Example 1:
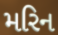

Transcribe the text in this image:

મરિન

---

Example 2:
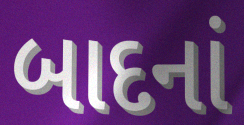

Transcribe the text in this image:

બાદનાં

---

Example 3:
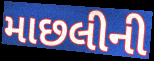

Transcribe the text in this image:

માછલીની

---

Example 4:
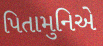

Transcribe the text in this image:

પિતામુનિએ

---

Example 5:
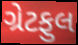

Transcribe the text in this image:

ગ્રેટફુલ